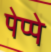
पेप्पे